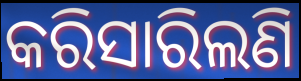
କରିସାରିଲଣି